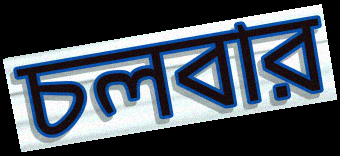
চলবার